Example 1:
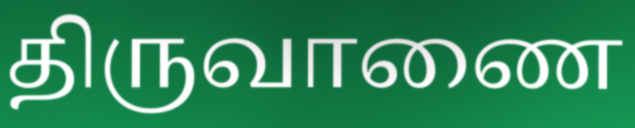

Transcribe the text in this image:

திருவாணை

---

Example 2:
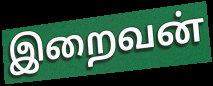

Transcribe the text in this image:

இறைவன்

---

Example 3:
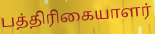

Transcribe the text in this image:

பத்திரிகையாளர்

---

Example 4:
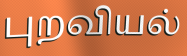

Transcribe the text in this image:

புறவியல்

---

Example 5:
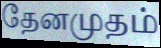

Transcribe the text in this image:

தேனமுதம்